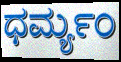
ಧರ್ಮ್ಯಂ